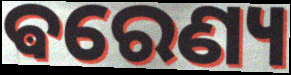
ଵରେଣ୍ୟ